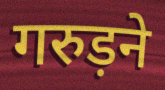
गरुड़ने